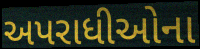
અપરાધીઓના